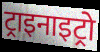
ट्राइनाइट्रो